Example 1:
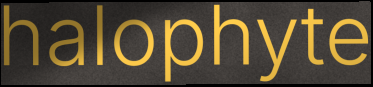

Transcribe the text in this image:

halophyte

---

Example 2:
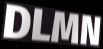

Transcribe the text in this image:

DLMN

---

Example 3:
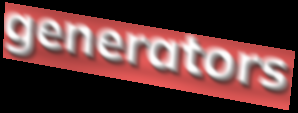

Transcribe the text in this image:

generators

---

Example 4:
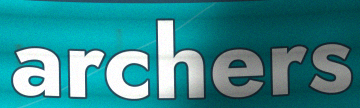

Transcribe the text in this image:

archers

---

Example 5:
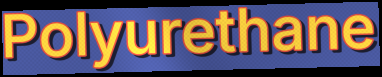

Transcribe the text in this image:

Polyurethane